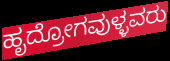
ಹೃದ್ರೋಗವುಳ್ಳವರು